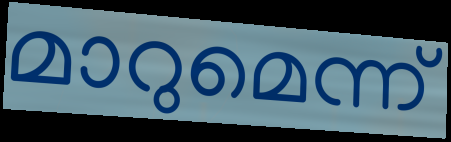
മാറുമെന്ന്